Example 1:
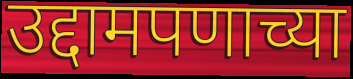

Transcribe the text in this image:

उद्दामपणाच्या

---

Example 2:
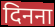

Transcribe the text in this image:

दिनना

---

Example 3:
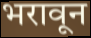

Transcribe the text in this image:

भरावून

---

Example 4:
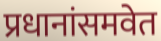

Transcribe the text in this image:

प्रधानांसमवेत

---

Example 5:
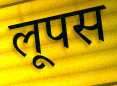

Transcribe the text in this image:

लूपस